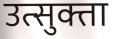
उत्सुक्ता